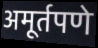
अमूर्तपणे